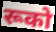
रूको